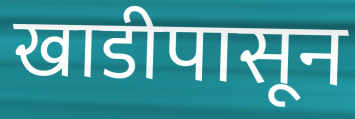
खाडीपासून